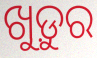
ଖୁଡ଼ୁର